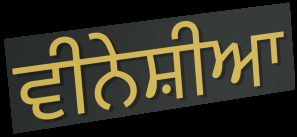
ਵੀਨੇਸ਼ੀਆ